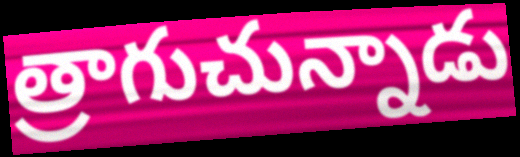
త్రాగుచున్నాడు